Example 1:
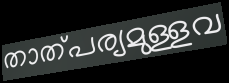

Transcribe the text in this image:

താത്പര്യമുള്ളവ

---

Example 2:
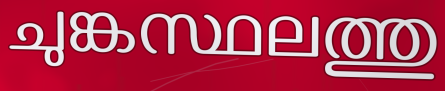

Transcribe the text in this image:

ചുങ്കസ്ഥലത്തു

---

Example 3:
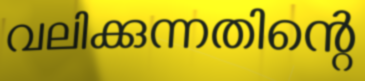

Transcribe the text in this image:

വലിക്കുന്നതിന്റെ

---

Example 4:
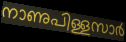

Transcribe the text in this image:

നാണുപിള്ളസാർ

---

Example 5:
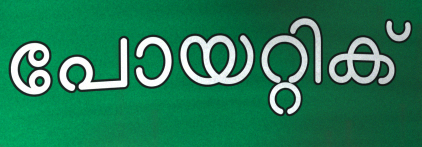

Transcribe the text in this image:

പോയറ്റിക്